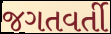
જગતવર્તી